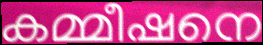
കമ്മീഷനെ